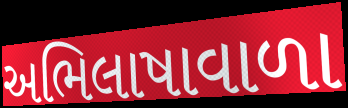
અભિલાષાવાળા